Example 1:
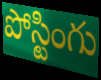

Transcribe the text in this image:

పోస్టింగు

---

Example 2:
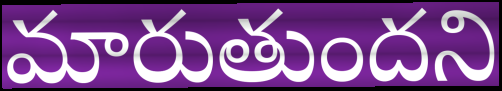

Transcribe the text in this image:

మారుతుందని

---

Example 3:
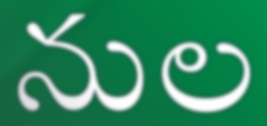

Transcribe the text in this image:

నుల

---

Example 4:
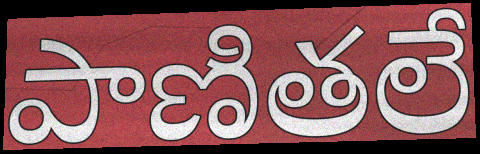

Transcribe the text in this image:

పాణితలే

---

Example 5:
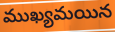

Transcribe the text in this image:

ముఖ్యమయిన